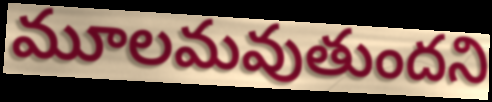
మూలమవుతుందని